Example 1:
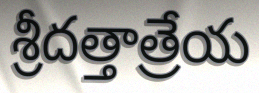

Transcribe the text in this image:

శ్రీదత్తాత్రేయ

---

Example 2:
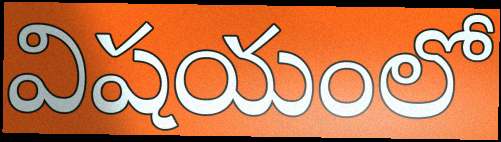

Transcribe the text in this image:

విషయంలో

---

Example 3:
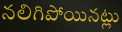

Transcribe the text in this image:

నలిగిపోయినట్లు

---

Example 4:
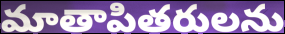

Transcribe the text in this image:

మాతాపితరులను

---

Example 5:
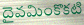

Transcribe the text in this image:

దైవమింకొకటి